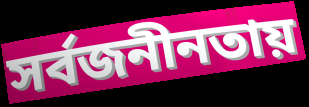
সর্বজনীনতায়